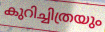
കുറിച്ചിത്രയും